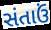
સંતાઉં